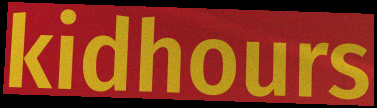
kidhours